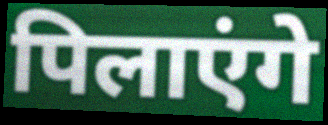
पिलाएंगे